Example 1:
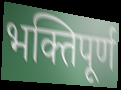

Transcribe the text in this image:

भक्तिपूर्ण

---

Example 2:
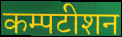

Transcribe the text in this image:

कम्पटीशन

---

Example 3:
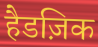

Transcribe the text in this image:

हैडज़िक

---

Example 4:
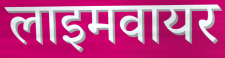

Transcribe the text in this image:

लाइमवायर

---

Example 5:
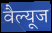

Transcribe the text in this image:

वैल्यूज